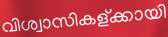
വിശ്വാസികള്ക്കായി